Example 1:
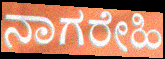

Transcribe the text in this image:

ನಾಗರೇಹಿ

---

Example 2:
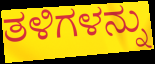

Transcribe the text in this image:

ತಳಿಗಳನ್ನು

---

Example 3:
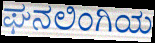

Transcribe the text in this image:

ಘನಲಿಂಗಿಯ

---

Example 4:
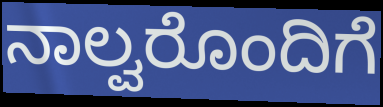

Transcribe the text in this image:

ನಾಲ್ವರೊಂದಿಗೆ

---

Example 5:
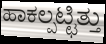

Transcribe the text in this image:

ಹಾಕಲ್ಪಟ್ಟಿತ್ತು